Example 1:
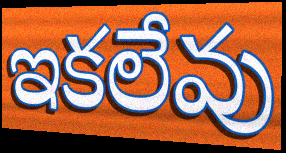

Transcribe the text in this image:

ఇకలేవు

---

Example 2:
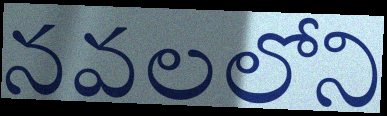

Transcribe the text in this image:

నవలలోని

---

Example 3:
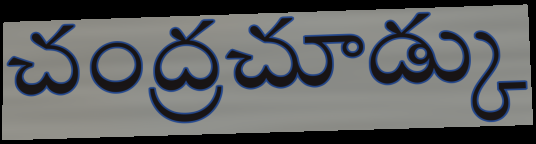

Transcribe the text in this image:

చంద్రచూడ్కు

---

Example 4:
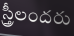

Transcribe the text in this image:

స్త్రీలందరు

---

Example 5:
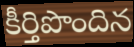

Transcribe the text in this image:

కీర్తిపొందిన